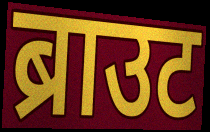
ब्राउट